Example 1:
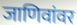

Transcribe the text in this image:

जाणिवांवर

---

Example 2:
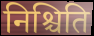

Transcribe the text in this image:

निश्चिति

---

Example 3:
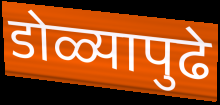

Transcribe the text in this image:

डोळ्यापुढे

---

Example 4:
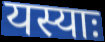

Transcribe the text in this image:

यस्याः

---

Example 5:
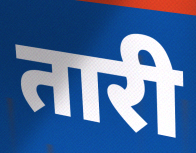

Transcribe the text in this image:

तारी